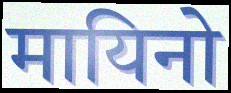
मायिनो